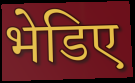
भेडिए